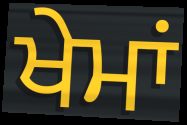
ਖੇਮਾਂ